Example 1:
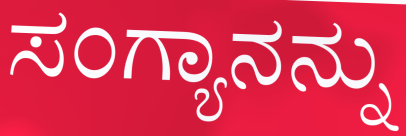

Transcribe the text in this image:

ಸಂಗ್ಯಾನನ್ನು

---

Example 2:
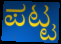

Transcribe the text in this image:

ಪಟ್ಟ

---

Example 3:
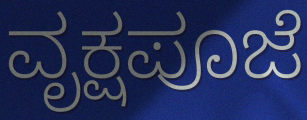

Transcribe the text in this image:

ವೃಕ್ಷಪೂಜೆ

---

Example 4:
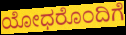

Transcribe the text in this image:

ಯೋಧರೊಂದಿಗೆ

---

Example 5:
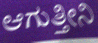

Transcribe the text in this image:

ಆಗುತ್ತೀನಿ